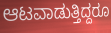
ಆಟವಾಡುತ್ತಿದ್ದರೂ